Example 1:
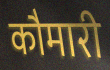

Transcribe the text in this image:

कौमारी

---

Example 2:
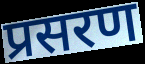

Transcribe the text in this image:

प्रसरण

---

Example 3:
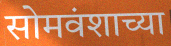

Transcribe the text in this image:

सोमवंशाच्या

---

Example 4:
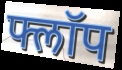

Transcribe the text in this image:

फ्लॉप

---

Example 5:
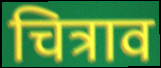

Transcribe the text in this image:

चित्राव